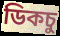
ডিকচু